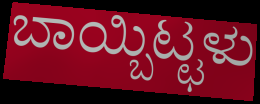
ಬಾಯ್ಬಿಟ್ಟಳು